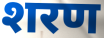
शरण